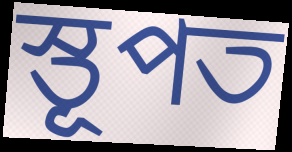
স্তূপত